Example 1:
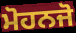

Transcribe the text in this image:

ਮੋਹਨਜੋ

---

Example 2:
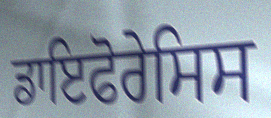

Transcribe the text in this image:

ਡਾਇਫੋਰੇਸਿਸ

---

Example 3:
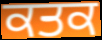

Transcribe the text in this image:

ਕਤਕ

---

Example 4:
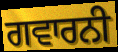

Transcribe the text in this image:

ਗਵਾਰਨੀ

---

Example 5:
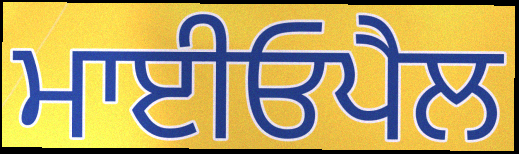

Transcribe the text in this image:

ਮਾਈਓਪੈਲ